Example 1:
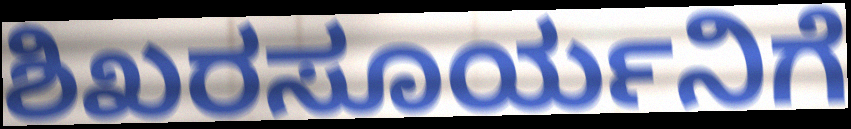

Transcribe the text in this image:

ಶಿಖರಸೂರ್ಯನಿಗೆ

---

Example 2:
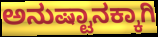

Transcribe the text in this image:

ಅನುಷ್ಟಾನಕ್ಕಾಗಿ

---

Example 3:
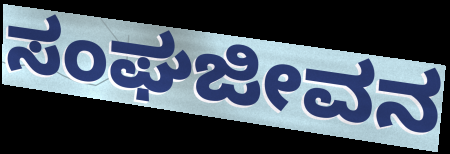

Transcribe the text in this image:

ಸಂಘಜೀವನ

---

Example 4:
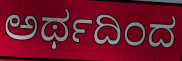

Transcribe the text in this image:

ಅರ್ಥದಿಂದ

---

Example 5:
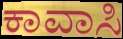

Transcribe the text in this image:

ಕಾವಾಸಿ